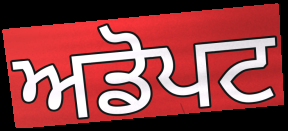
ਅਡੋਪਟ